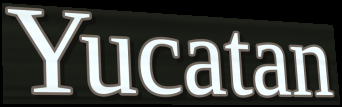
Yucatan